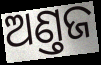
ଅଣ୍ତଜ